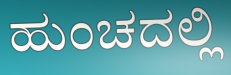
ಹುಂಚದಲ್ಲಿ